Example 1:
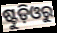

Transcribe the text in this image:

ଷ୍ଟୁଡ଼ିଓରୁ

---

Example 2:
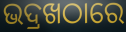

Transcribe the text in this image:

ଭଦ୍ରଖଠାରେ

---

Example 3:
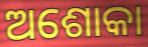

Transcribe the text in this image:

ଅଶୋକା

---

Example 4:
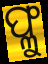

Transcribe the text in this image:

ଫ୍ଳୁ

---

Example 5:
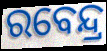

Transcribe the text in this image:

ରବେନ୍ଦ୍ର